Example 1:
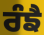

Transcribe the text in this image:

ਰੰਙੈ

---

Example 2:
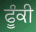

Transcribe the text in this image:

ਫੂੰਕੀ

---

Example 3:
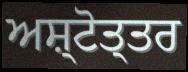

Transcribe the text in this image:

ਅਸ਼੍ਟੋਤ੍ਤਰ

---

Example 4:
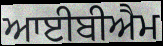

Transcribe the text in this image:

ਆਈਬੀਐਮ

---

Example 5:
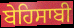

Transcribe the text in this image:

ਬੇਹਿਸਾਬੀ